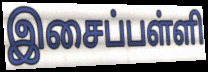
இசைப்பள்ளி